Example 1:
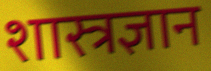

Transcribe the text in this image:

शास्त्रज्ञान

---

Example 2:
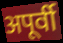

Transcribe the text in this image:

अपूर्वी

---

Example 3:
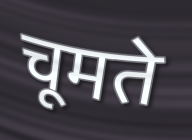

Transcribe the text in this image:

चूमते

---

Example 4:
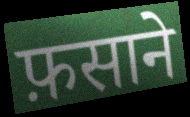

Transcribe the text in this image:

फ़साने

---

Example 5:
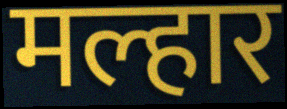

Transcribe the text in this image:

मल्हार